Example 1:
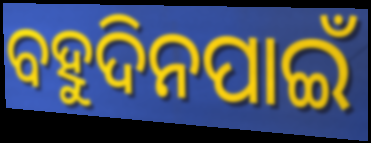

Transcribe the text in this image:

ବହୁଦିନପାଇଁ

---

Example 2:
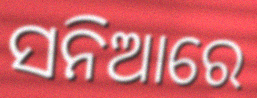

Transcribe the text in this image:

ସନିଆରେ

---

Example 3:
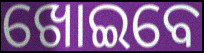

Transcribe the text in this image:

ଖୋଇବେ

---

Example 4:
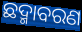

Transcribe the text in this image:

ଛଦ୍ମାବରଣ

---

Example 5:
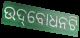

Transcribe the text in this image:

ଉଦ୍‌ବୋଧନଟି